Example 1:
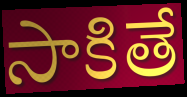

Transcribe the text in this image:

సాకితే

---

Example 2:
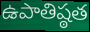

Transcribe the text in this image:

ఉపాతిష్ఠత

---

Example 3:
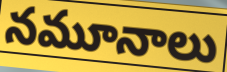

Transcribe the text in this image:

నమూనాలు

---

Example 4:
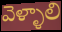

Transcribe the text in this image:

వెళ్ళాలి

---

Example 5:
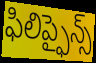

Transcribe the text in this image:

ఫిలిప్ఫైన్స్